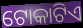
ଟୋକାଟିଏ